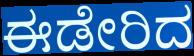
ಈಡೇರಿದ